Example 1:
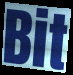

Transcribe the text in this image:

Bit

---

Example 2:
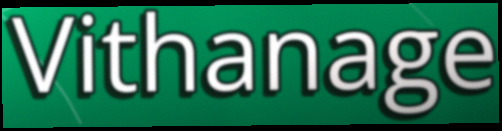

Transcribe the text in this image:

Vithanage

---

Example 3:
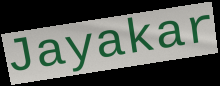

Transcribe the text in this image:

Jayakar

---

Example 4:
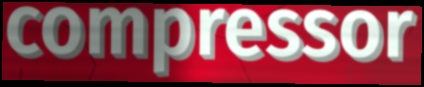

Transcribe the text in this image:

compressor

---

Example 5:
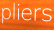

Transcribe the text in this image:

pliers